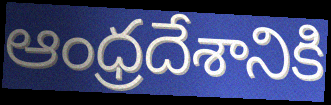
ఆంధ్రదేశానికి